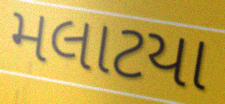
મલાટયા